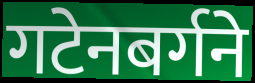
गटेनबर्गने